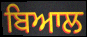
ਬਿਆਲ